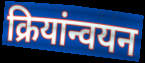
क्रियांन्वयन